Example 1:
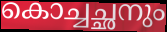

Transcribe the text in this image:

കൊച്ചച്ഛനും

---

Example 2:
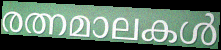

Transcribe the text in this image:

രത്നമാലകൾ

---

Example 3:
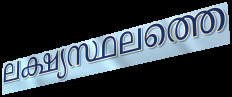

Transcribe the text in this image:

ലക്ഷ്യസ്ഥലത്തെ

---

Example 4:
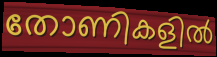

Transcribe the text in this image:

തോണികളിൽ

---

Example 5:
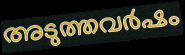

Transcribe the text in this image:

അടുത്തവർഷം